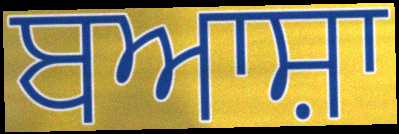
ਬਆਸ਼ਾ